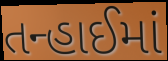
તન્હાઈમાં